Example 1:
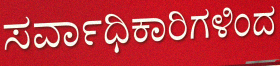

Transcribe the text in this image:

ಸರ್ವಾಧಿಕಾರಿಗಳಿಂದ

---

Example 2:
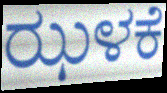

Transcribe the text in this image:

ಝಳಕೆ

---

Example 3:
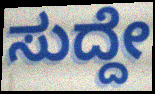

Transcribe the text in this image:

ಸುದ್ದೇ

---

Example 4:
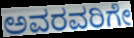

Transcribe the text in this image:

ಅವರವರಿಗೇ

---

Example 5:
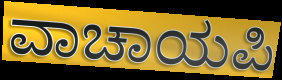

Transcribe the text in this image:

ವಾಚಾಯಪಿ